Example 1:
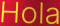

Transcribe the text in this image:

Hola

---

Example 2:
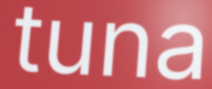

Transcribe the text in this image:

tuna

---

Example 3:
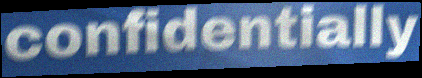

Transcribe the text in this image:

confidentially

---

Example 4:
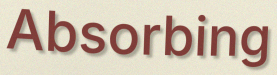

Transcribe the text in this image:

Absorbing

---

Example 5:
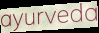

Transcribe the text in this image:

ayurveda